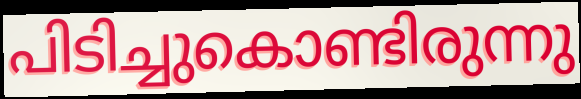
പിടിച്ചുകൊണ്ടിരുന്നു